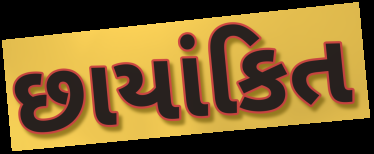
છાયાંકિત